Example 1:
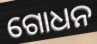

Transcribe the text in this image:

ଗୋଧନ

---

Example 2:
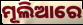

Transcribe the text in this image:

ମୂଲିଆରେ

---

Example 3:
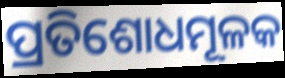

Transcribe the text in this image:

ପ୍ରତିଶୋଧମୂଳକ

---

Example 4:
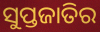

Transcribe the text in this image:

ସୁପ୍ତଜାତିର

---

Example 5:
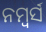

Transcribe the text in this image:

ନମ୍ୱର୍ସ